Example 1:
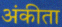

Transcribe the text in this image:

अंकीता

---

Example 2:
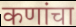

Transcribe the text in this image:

कणांचा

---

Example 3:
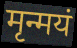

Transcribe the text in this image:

मृन्मयं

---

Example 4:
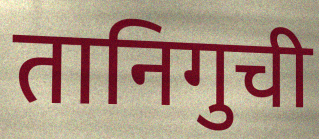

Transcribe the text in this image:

तानिगुची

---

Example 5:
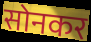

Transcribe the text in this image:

सोनकर